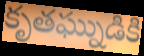
కృతఘ్నుడికి